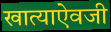
खात्याऐवजी